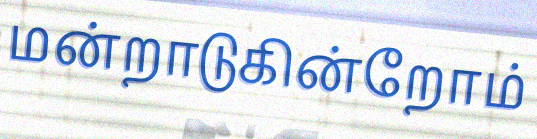
மன்றாடுகின்றோம்